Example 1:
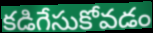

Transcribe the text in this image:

కడిగేసుకోవడం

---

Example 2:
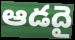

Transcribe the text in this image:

ఆడదై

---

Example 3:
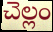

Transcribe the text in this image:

చెల్లం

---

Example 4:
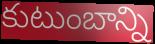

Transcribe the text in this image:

కుటుంబాన్ని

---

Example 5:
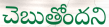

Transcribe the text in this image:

చెబుతోందని